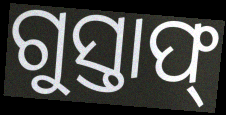
ଗୁସ୍ତାଫ୍